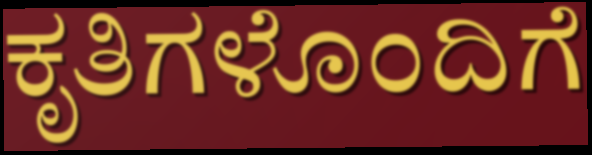
ಕೃತಿಗಳೊಂದಿಗೆ